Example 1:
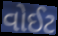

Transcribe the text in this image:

વોઈટ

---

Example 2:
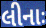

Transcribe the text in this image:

લીનાઃ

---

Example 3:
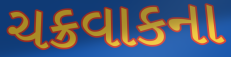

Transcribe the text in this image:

ચક્રવાકના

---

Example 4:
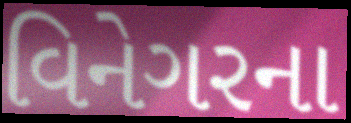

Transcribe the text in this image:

વિનેગરના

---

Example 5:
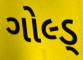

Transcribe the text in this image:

ગોલ્ડ્